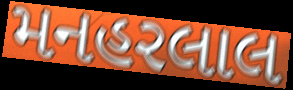
મનહરલાલ